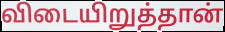
விடையிறுத்தான்